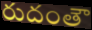
రుదంతౌ